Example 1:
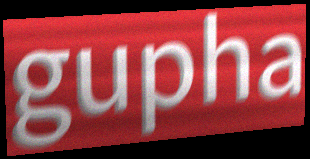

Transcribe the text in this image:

gupha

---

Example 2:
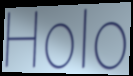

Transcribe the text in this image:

Holo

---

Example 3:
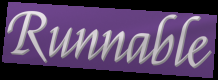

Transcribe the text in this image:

Runnable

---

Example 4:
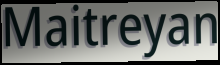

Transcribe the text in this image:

Maitreyan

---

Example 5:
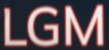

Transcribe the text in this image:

LGM